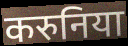
करुनिया